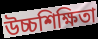
উচ্চশিক্ষিতা